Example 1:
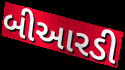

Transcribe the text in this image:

બીઆરડી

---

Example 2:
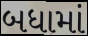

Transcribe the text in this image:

બધામાં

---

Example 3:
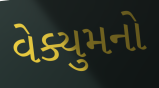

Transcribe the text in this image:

વેક્યુમનો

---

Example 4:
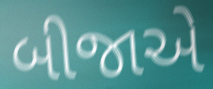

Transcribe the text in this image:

બીજાએ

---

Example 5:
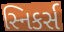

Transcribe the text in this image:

સ્નિકર્સ